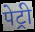
पेट्री